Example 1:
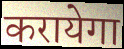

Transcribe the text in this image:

करायेगा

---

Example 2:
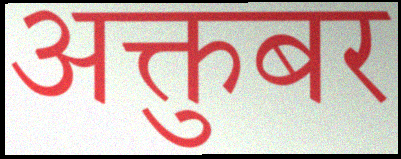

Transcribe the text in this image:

अक्तुबर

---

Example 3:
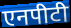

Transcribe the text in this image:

एनपीटी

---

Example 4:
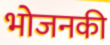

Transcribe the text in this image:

भोजनकी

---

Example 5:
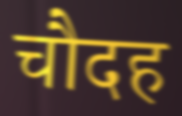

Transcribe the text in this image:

चौदह